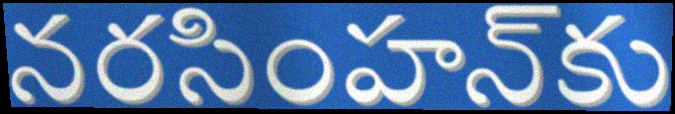
నరసింహన్‌కు